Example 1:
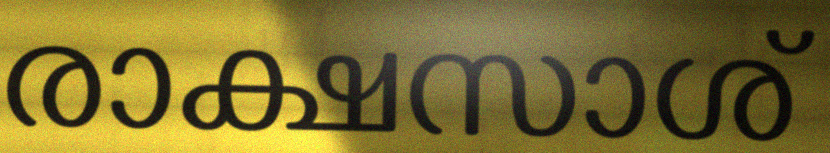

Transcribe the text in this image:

രാക്ഷസാശ്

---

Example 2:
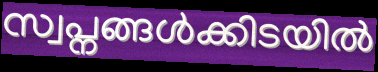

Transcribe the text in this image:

സ്വപ്നങ്ങൾക്കിടയിൽ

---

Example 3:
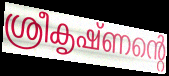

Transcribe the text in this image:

ശ്രീകൃഷ്‌ണന്റെ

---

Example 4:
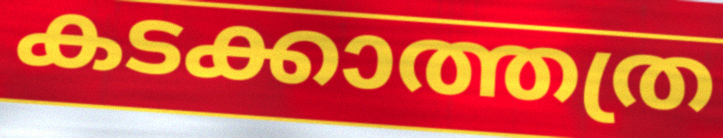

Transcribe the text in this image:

കടക്കാത്തത്ര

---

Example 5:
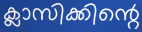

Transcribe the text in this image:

ക്ലാസിക്കിന്റെ